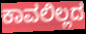
ಕಾವಲಿಲ್ಲದ